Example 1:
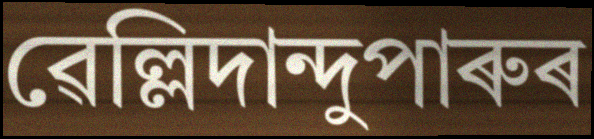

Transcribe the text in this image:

ৱেল্লিদান্দুপাৰুৰ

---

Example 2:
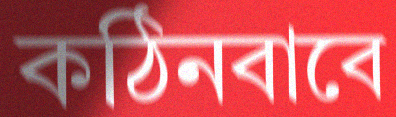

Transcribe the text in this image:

কঠিনবাবে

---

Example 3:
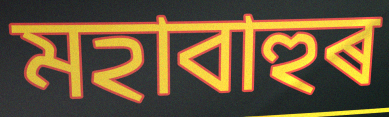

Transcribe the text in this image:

মহাবাহুৰ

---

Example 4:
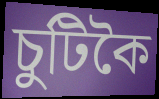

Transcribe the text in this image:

চুটিকৈ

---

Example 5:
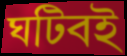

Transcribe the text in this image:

ঘটিবই